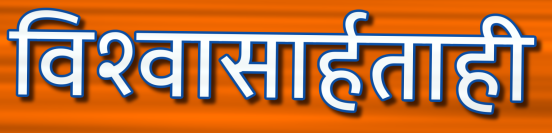
विश्वासार्हताही